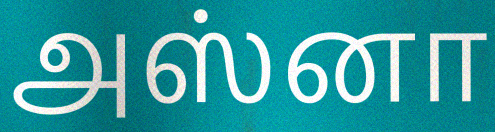
அஸ்னா